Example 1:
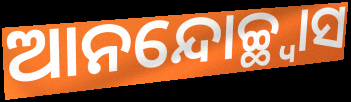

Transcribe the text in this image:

ଆନନ୍ଦୋଚ୍ଛ୍ୱାସ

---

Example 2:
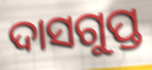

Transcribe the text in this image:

ଦାସଗୁପ୍ତ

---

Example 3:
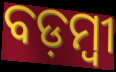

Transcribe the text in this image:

ବଡ଼ମ୍ବୀ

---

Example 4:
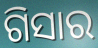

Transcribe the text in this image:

ଗିସାର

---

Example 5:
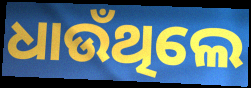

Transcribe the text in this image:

ଧାଉଁଥିଲେ